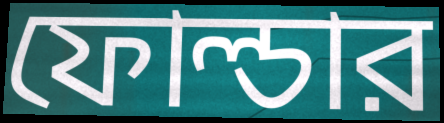
ফোল্ডার